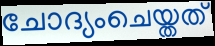
ചോദ്യംചെയ്തത്